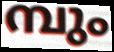
മ്പും